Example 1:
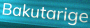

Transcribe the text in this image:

Bakutarige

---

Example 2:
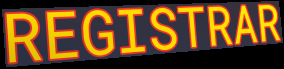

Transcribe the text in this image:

REGISTRAR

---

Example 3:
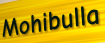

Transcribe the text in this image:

Mohibulla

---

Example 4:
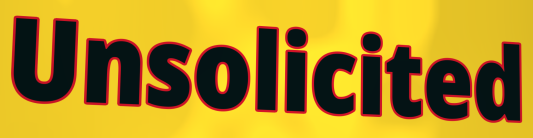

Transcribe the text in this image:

Unsolicited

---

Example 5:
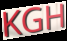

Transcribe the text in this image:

KGH